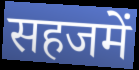
सहजमें